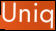
Uniq